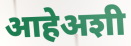
आहेअशी